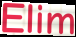
Elim